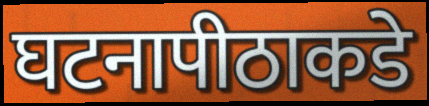
घटनापीठाकडे